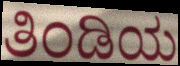
ತಿಂಡಿಯ